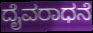
ದೈವರಾಧನೆ